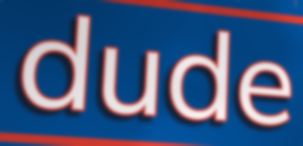
dude